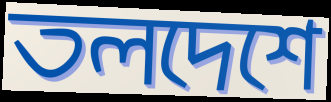
তলদেশে